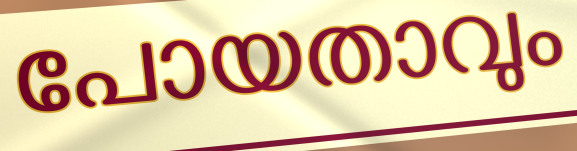
പോയതാവും